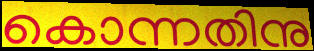
കൊന്നതിനു